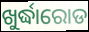
ଖୁର୍ଦ୍ଧାରୋଡ